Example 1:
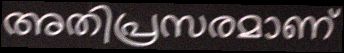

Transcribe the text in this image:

അതിപ്രസരമാണ്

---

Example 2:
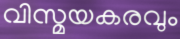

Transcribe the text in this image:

വിസ്മയകരവും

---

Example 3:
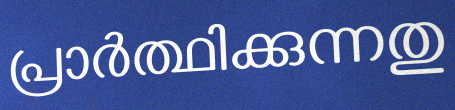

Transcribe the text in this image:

പ്രാർത്ഥിക്കുന്നതു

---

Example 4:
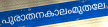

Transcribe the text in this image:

പുരാതനകാലംമുതലേ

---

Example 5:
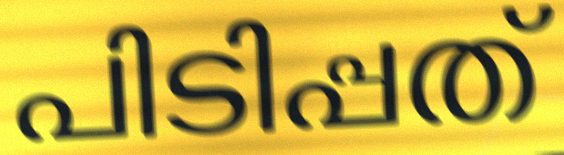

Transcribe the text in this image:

പിടിപ്പത്